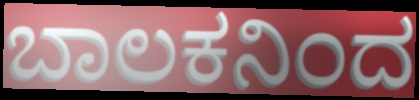
ಬಾಲಕನಿಂದ